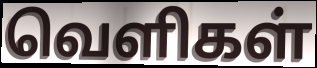
வெளிகள்